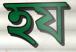
হয